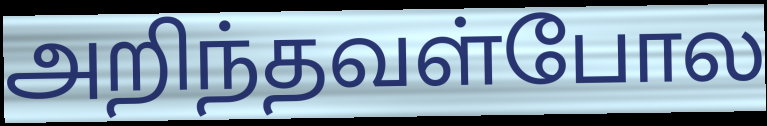
அறிந்தவள்போல